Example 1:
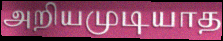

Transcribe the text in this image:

அறியமுடியாத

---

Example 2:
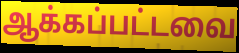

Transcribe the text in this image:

ஆக்கப்பட்டவை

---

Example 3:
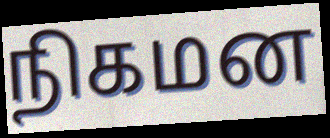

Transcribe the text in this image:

நிகமன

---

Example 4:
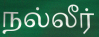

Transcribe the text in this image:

நல்லீர்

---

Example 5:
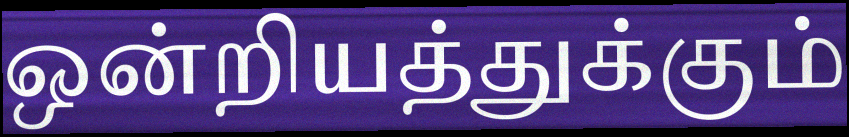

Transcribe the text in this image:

ஒன்றியத்துக்கும்